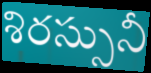
శిరస్సునీ